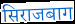
सिराजबाग